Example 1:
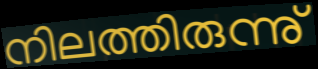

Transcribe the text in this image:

നിലത്തിരുന്നു്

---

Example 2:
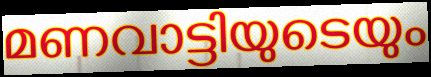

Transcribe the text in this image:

മണവാട്ടിയുടെയും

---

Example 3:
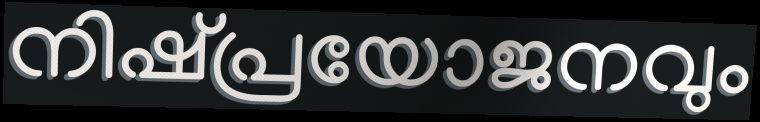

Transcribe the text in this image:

നിഷ്പ്രയോജനവും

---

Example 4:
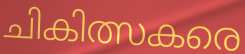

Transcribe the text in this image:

ചികിത്സകരെ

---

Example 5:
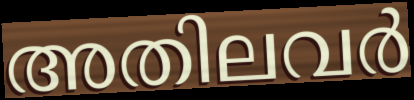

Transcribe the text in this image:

അതിലവർ